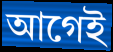
আগেই